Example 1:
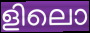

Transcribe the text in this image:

ളിലൊ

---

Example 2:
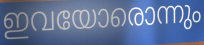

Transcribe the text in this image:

ഇവയോരൊന്നും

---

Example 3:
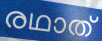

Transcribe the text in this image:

രഥാത്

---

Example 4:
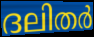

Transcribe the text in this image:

ദലിതർ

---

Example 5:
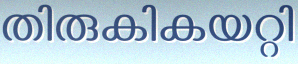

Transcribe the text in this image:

തിരുകികയറ്റി